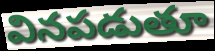
వినపడుతూ